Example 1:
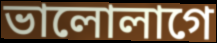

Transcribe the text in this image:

ভালোলাগে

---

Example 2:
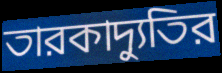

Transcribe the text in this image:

তারকাদ্যুতির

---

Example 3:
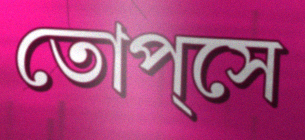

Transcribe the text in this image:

তোপ্‌সে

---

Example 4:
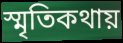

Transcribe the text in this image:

স্মৃতিকথায়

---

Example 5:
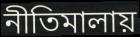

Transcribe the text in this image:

নীতিমালায়